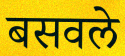
बसवले